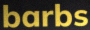
barbs